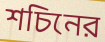
শচিনের